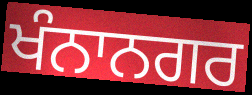
ਖੰਨਾਨਗਰ